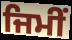
ਜਿਮੀਂ